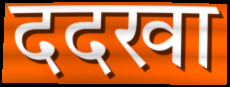
ददखा